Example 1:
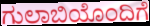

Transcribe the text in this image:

ಗುಲಾಬಿಯೊಂದಿಗೆ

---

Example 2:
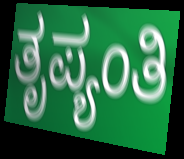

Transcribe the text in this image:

ತೃಪ್ಯಂತಿ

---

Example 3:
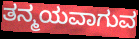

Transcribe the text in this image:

ತನ್ಮಯವಾಗುವ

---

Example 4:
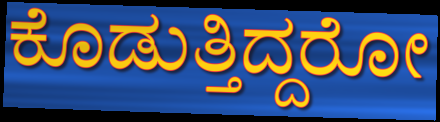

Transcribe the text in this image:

ಕೊಡುತ್ತಿದ್ದರೋ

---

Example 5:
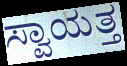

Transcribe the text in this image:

ಸ್ವಾಯತ್ತ